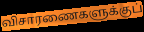
விசாரணைகளுக்குப்